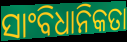
ସାଂବିଧାନିକତା